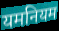
यमनियम